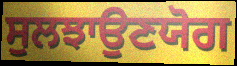
ਸੁਲਝਾਉਣਯੋਗ